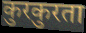
कुरकुरता